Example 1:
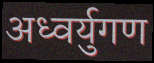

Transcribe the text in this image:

अध्वर्युगण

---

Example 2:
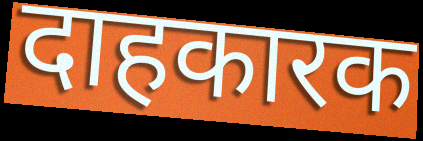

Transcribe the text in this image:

दाहकारक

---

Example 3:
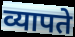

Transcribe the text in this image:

व्यापते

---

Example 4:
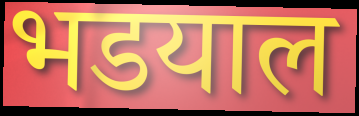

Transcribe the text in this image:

भडयाल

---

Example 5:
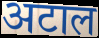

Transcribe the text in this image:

अटाल